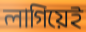
লাগিয়েই